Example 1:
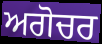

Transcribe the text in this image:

ਅਗੋਚਰ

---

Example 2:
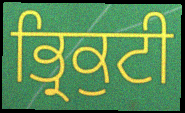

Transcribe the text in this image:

ਭ੍ਰਿਕੁਟੀ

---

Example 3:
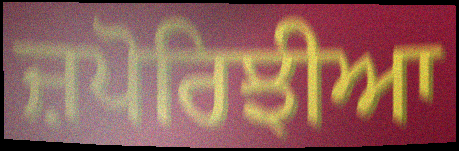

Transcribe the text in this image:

ਜ਼ਪੋਰਿਝੀਆ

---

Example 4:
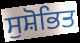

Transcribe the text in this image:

ਸੁਸ਼ੋਭਿਤ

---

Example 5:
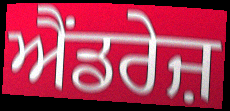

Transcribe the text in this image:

ਐਂਡਰੇਜ਼